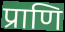
प्राणि